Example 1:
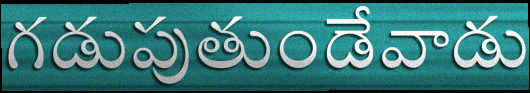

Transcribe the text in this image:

గడుపుతుండేవాడు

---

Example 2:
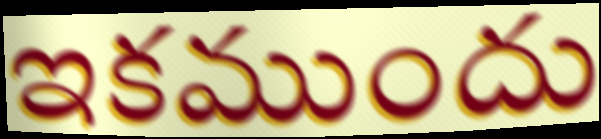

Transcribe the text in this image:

ఇకముందు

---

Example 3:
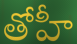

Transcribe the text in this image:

తోహీ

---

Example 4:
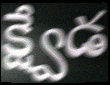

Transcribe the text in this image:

క్ష్వేడ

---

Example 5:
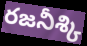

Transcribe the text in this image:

రజనీశ్కి